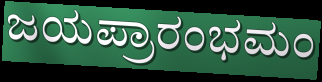
ಜಯಪ್ರಾರಂಭಮಂ